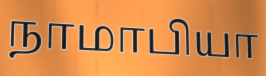
நாமாபியா